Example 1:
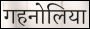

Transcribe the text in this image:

गहनोलिया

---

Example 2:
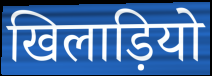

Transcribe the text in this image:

खिलाड़ियो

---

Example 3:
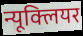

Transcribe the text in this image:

न्‍यूक्लियर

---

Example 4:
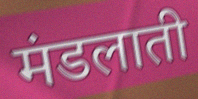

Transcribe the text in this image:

मंडलाती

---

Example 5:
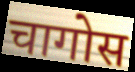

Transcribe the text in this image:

चागोस